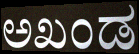
ಅಖಂಡ